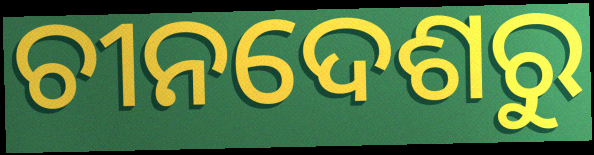
ଚୀନଦେଶରୁ